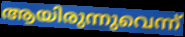
ആയിരുന്നുവെന്ന്